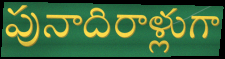
పునాదిరాళ్లుగా